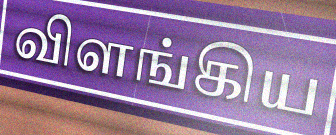
விளங்கிய